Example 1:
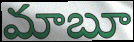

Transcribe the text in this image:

మాబూ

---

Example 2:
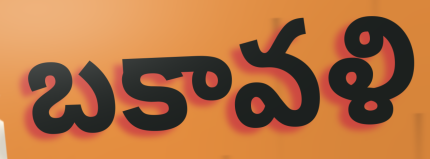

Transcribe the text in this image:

బకావళి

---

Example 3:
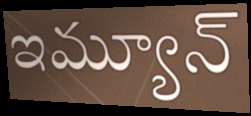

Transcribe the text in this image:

ఇమ్యూన్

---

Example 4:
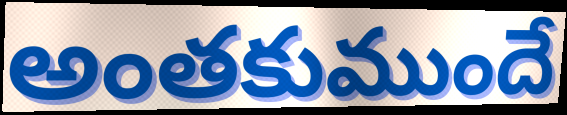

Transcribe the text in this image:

అంతకుముందే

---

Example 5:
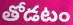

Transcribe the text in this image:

తోడటం